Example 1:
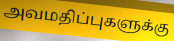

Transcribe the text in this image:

அவமதிப்புகளுக்கு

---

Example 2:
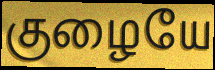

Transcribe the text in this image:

குழையே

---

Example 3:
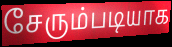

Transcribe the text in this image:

சேரும்படியாக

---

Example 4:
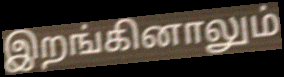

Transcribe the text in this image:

இறங்கினாலும்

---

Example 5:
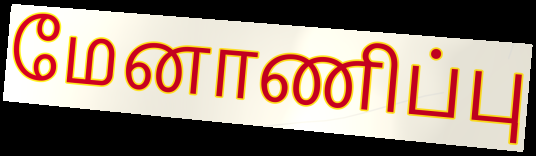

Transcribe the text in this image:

மேனாணிப்பு